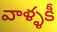
వాళ్ళకీ